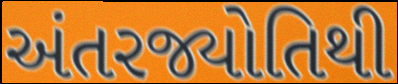
અંતરજ્યોતિથી